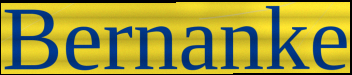
Bernanke